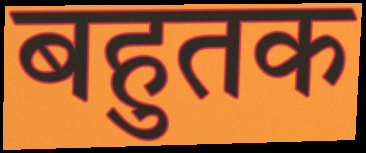
बहुतक